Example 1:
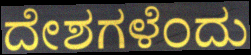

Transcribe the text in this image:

ದೇಶಗಳೆಂದು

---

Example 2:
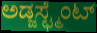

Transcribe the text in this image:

ಅಡ್ಜಸ್ಟ್ಮೆಂಟ್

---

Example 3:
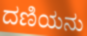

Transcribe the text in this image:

ದಣಿಯನು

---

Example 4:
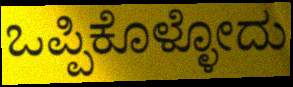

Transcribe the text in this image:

ಒಪ್ಪಿಕೊಳ್ಳೋದು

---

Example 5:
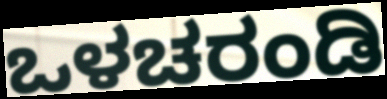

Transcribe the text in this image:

ಒಳಚರಂಡಿ